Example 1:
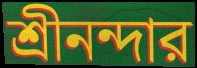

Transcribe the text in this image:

শ্রীনন্দার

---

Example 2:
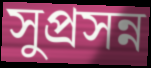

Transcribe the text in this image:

সুপ্রসন্ন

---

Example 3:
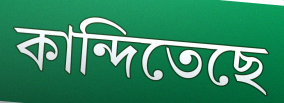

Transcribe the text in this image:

কান্দিতেছে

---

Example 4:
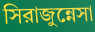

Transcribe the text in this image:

সিরাজুন্নেসা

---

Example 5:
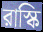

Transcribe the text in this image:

রাস্কি